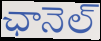
ఛానెల్